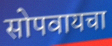
सोपवायचा